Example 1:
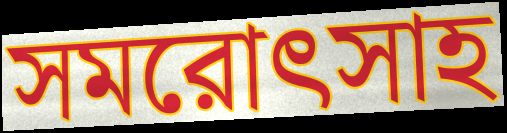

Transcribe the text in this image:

সমরোৎসাহ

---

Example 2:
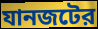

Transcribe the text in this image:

যানজটের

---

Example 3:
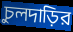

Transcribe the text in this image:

চুলদাড়ির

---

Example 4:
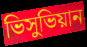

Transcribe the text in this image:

ভিসুভিয়ান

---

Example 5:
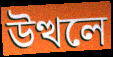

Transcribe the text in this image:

উত্থলে